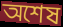
অশেষ